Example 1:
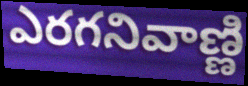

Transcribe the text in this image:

ఎరగనివాణ్ణి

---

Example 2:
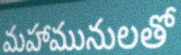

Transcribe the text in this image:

మహామునులతో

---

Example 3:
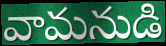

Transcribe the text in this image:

వామనుడి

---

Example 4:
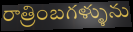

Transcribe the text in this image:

రాత్రింబగళ్ళును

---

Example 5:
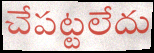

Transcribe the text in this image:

చేపట్టలేదు